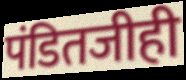
पंडितजीही